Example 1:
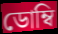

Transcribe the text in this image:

ডোম্বি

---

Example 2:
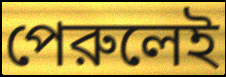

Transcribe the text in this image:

পেরুলেই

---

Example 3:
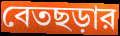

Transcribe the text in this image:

বেতছড়ার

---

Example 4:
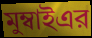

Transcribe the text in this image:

মুম্বাইএর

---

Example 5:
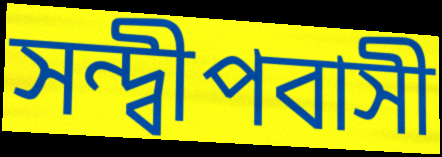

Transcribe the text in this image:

সন্দ্বীপবাসী